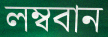
লম্ববান